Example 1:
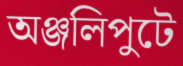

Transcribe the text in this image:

অঞ্জলিপুটে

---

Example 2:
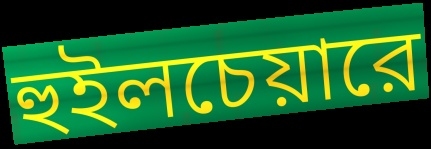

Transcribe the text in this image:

হুইলচেয়ারে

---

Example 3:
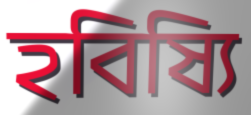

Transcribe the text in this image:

হবিষ্যি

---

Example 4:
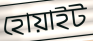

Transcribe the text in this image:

হোয়াইট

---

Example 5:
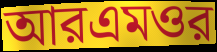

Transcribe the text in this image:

আরএমওর